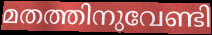
മതത്തിനുവേണ്ടി